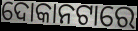
ଦୋକାନଟାରେ